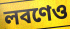
লবণেও